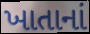
ખાતાનાં